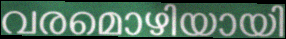
വരമൊഴിയായി